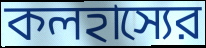
কলহাস্যের